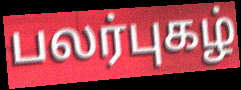
பலர்புகழ்